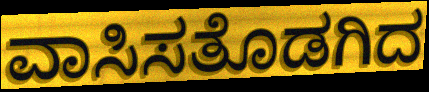
ವಾಸಿಸತೊಡಗಿದ